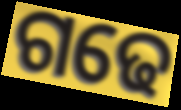
ଗଢେ